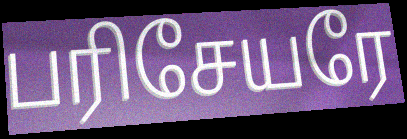
பரிசேயரே